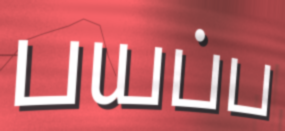
பயப்ப